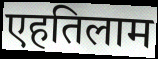
एहतिलाम